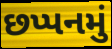
છપ્પનમું